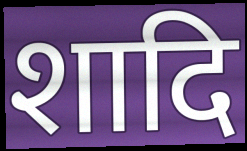
शादि